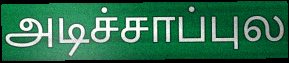
அடிச்சாப்புல